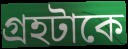
গ্রহটাকে